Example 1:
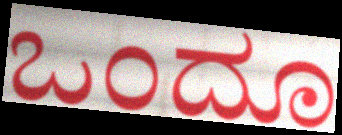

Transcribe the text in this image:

ಒಂದೂ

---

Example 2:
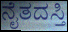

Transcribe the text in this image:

ನೈತದಸ್ತಿ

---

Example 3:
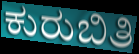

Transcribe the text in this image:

ಕುರುಬಿತಿ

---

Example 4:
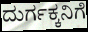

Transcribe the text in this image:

ದುರ್ಗಕ್ಕನಿಗೆ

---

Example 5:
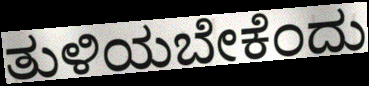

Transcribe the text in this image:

ತುಳಿಯಬೇಕೆಂದು